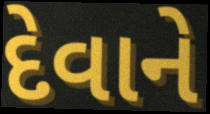
દેવાને